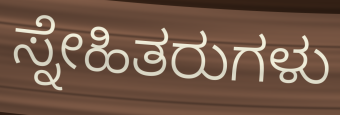
ಸ್ನೇಹಿತರುಗಳು